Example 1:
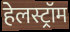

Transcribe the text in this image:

हेलस्ट्रॉम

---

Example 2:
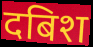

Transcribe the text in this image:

दबिश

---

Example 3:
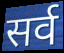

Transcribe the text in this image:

सर्व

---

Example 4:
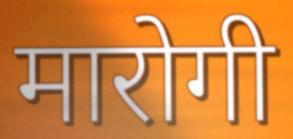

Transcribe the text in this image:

मारोगी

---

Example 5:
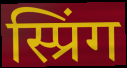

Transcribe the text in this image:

स्प्रिंग